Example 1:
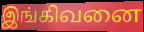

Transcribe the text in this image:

இங்கிவனை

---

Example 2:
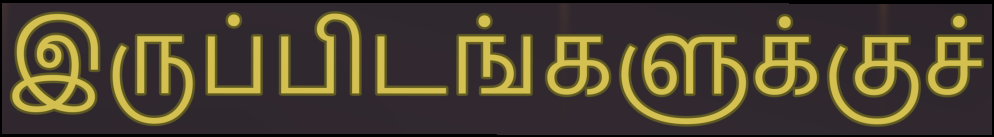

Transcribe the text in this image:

இருப்பிடங்களுக்குச்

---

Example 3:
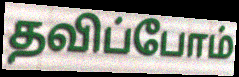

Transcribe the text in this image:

தவிப்போம்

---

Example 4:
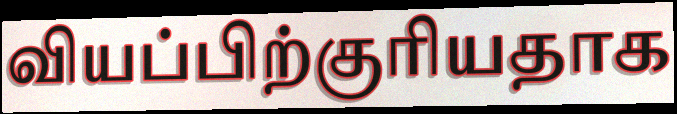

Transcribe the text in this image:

வியப்பிற்குரியதாக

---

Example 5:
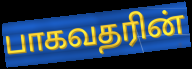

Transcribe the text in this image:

பாகவதரின்